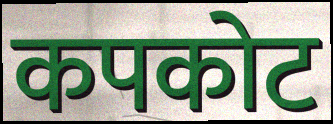
कपकोट